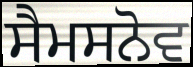
ਸੈਮਸਨੋਵ